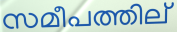
സമീപത്തില്